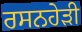
ਰਸਨਹੇੜੀ